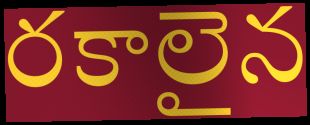
రకాలైన